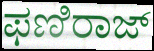
ಫಣಿರಾಜ್